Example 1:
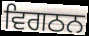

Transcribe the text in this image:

ਵਿਗਠਨ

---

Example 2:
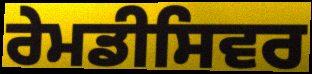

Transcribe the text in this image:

ਰੇਮਡੀਸਿਵਰ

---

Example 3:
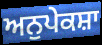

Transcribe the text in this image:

ਅਨੁਪੇਕਸ਼ਾ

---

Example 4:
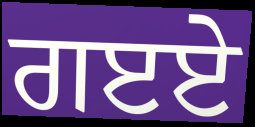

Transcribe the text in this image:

ਗੲਏ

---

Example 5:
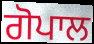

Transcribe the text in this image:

ਗੋਪਾਲ